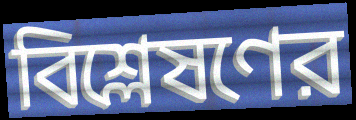
বিশ্লেষণের